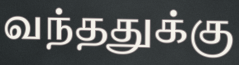
வந்ததுக்கு